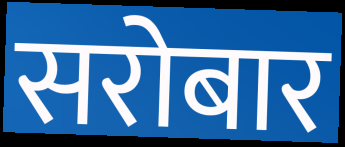
सरोबार